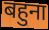
बहुना